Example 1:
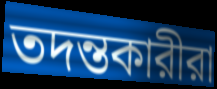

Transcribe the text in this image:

তদন্তকারীরা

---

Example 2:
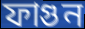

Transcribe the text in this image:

ফাগুন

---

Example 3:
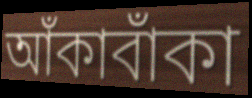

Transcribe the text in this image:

আঁকাবাঁকা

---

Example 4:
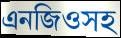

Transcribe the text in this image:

এনজিওসহ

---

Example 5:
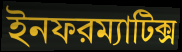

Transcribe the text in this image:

ইনফরম্যাটিক্স